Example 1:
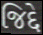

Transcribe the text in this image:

જિદ્દે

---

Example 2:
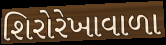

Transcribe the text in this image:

શિરોરેખાવાળા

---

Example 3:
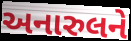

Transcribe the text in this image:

અનારુલને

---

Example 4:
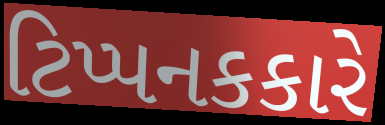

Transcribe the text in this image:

ટિપ્પનકકારે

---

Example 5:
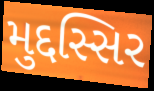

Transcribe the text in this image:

મુદ્દસ્સિર